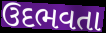
ઉદભવતા